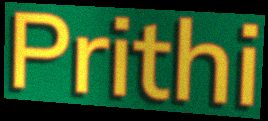
Prithi